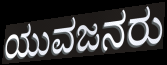
ಯುವಜನರು